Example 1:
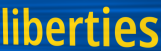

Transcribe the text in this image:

liberties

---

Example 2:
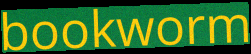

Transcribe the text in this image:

bookworm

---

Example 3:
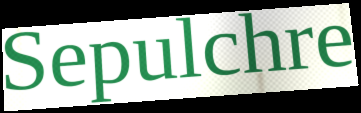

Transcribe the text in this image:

Sepulchre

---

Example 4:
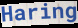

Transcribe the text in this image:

Haring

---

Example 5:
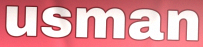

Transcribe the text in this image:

usman